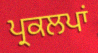
ਪ੍ਰਕਲਪਾਂ